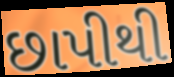
છાપીથી